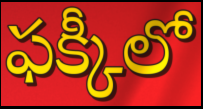
ఫక్కీలో